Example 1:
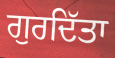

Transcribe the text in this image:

ਗੁਰਦਿੱਤਾ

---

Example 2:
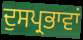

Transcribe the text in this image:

ਦੁਸਪ੍ਰਭਾਵਾਂ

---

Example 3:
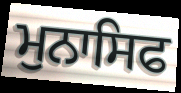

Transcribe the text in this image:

ਮੁਨਾਸਿਫ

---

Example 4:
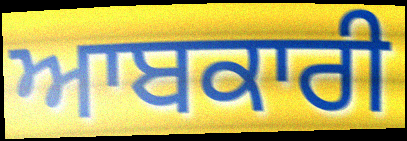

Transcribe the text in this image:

ਆਬਕਾਰੀ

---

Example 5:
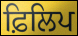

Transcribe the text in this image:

ਫ਼ਿਲਿਪ